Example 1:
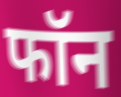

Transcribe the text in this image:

फॉन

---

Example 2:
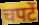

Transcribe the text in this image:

चपटें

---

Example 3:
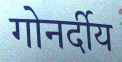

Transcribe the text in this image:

गोनर्दीय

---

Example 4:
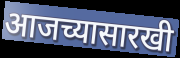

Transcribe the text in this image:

आजच्यासारखी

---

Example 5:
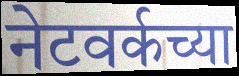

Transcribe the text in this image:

नेटवर्कच्या